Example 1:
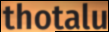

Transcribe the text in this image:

thotalu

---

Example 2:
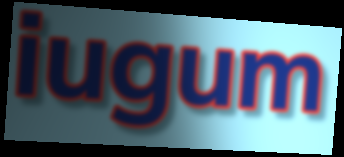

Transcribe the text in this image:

iugum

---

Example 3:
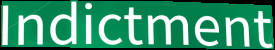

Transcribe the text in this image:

Indictment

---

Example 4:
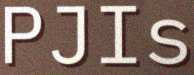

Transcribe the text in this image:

PJIs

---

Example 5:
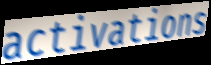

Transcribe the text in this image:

activations